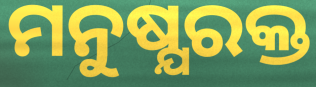
ମନୁଷ୍ଯରକ୍ତ